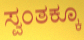
ಸ್ವಂತಕ್ಕೂ